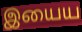
இயைய